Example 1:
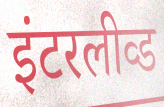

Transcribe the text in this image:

इंटरलीव्ड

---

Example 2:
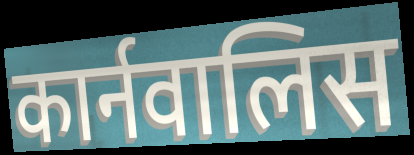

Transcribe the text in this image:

कार्नवालिस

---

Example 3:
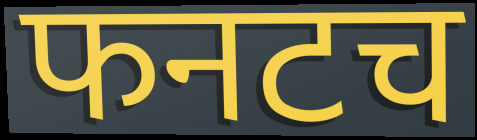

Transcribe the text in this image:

फनटच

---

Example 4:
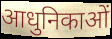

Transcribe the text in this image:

आधुनिकाओं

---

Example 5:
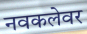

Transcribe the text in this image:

नवकलेवर